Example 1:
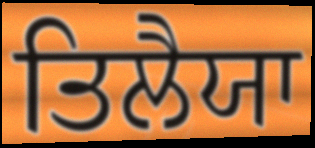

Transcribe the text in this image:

ਤਿਲੈਯਾ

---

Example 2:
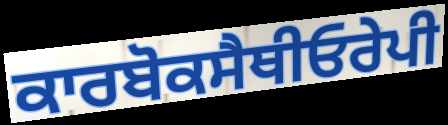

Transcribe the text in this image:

ਕਾਰਬੋਕਸੈਥੀਓਰੇਪੀ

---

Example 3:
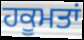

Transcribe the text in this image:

ਹਕੂਮਤਾਂ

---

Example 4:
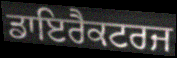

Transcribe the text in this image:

ਡਾਇਰੈਕਟਰਜ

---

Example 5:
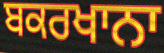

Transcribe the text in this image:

ਬਕਰਖਾਨਾ